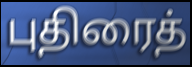
புதிரைத்